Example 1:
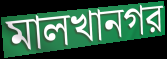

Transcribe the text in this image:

মালখানগর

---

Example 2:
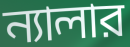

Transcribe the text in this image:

ন্যালার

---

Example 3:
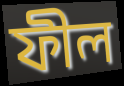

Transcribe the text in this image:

ফীল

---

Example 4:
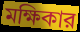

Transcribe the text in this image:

মক্ষিকার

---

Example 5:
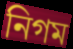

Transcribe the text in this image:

নিগম